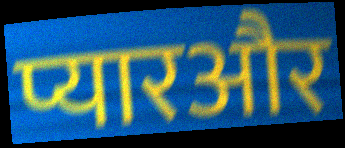
प्यारऔर